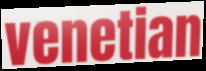
venetian